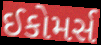
ઈકોમર્સ